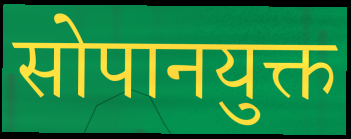
सोपानयुक्त